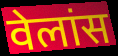
वेलांस